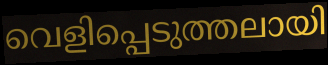
വെളിപ്പെടുത്തലായി